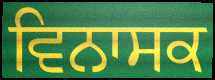
ਵਿਨਾਸਕ